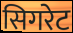
सिगरेट